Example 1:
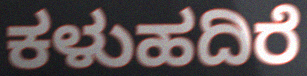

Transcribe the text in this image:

ಕಳುಹದಿರೆ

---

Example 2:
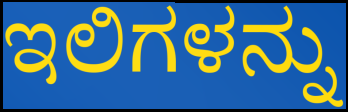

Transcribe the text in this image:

ಇಲಿಗಳನ್ನು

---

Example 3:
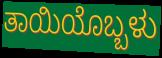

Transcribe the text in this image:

ತಾಯಿಯೊಬ್ಬಳು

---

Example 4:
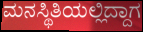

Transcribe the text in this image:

ಮನಸ್ಥಿತಿಯಲ್ಲಿದ್ದಾಗ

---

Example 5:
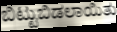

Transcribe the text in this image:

ಬಿಟ್ಟುಬಿಡಲಾಯಿತು